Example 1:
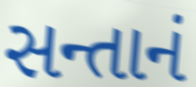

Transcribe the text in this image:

સન્તાનં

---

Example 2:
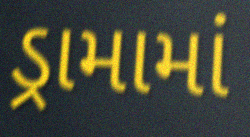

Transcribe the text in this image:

ડ્રામામાં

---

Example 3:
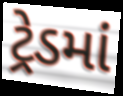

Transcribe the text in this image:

ટ્રેડમાં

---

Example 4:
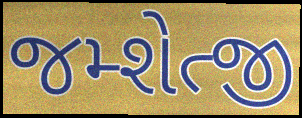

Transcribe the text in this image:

જમ્શેત્જી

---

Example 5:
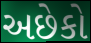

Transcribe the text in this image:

અછેકો